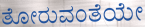
ತೋರುವಂತೆಯೇ